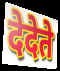
देदेते